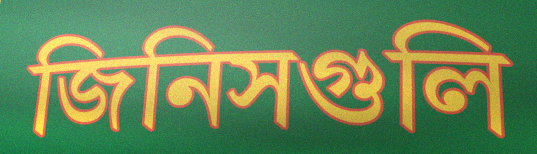
জিনিসগুলি